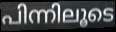
പിന്നിലൂടെ